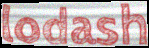
lodash